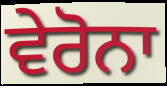
ਵੇਰੋਨਾ